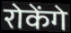
रोकेंगे